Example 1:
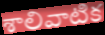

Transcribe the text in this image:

శాలివాటిక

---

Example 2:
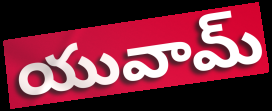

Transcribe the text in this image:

యువామ్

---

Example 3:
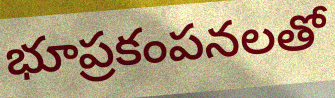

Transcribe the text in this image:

భూప్రకంపనలతో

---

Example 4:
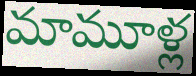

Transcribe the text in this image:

మామూళ్ల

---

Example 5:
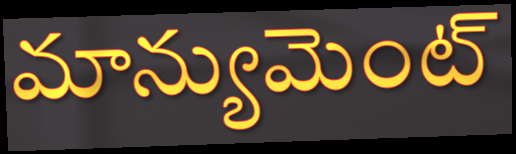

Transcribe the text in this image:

మాన్యుమెంట్